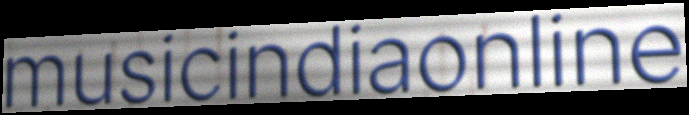
musicindiaonline